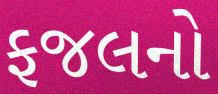
ફજલનો